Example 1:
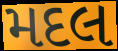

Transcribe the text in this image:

મદલ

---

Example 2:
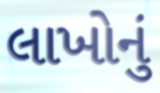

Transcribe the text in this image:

લાખોનું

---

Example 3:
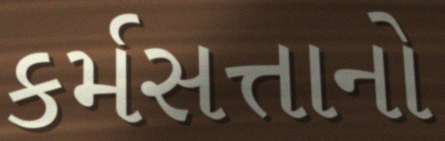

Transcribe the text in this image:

કર્મસત્તાનો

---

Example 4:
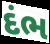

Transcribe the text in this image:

દંભ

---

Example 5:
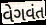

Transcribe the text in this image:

વેગવંત